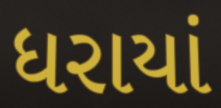
ધરાયાં